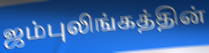
ஜம்புலிங்கத்தின்